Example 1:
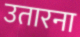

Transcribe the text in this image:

उतारना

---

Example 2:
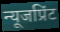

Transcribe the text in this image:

न्यूजप्रिंट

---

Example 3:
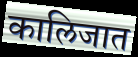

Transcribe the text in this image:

कालिजात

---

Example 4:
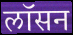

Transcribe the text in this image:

लॉसन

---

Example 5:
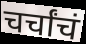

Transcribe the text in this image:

चर्चांचं